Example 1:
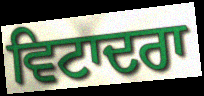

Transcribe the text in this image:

ਵਿਟਾਦਰਾ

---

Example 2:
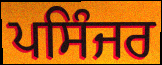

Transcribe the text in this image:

ਪਸਿੰਜਰ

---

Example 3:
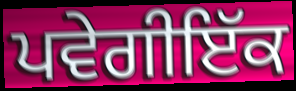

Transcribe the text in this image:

ਪਵੇਗੀਇੱਕ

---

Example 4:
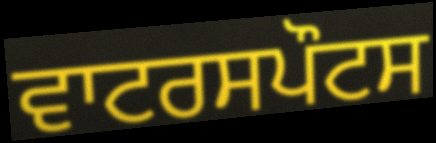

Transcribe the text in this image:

ਵਾਟਰਸਪੌਟਸ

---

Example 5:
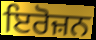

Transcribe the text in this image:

ਇਰੋਜ਼ਨ